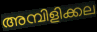
അമ്പിളിക്കല